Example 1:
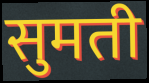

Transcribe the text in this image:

सुमती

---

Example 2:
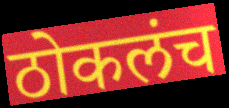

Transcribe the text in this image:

ठोकलंच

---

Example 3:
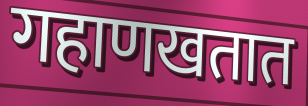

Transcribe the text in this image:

गहाणखतात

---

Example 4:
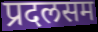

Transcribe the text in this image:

प्रदलसम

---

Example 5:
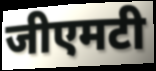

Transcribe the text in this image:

जीएमटी